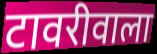
टावरीवाला